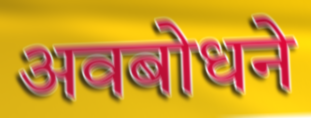
अवबोधने